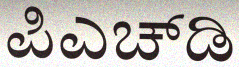
ಪಿಎಚ್‌ಡಿ